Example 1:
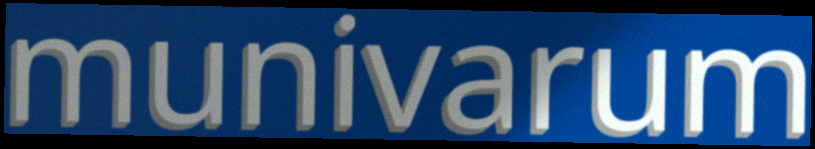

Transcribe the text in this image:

munivarum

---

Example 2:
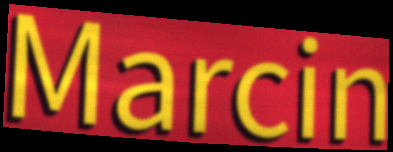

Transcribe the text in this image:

Marcin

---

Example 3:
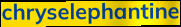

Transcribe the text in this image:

chryselephantine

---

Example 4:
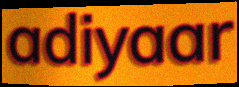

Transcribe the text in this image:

adiyaar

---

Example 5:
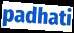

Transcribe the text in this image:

padhati